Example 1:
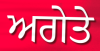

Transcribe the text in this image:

ਅਗੇਤੇ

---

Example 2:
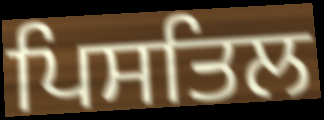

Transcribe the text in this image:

ਪਿਸਤਿਲ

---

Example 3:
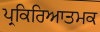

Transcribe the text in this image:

ਪ੍ਰਕਿਰਿਆਤਮਕ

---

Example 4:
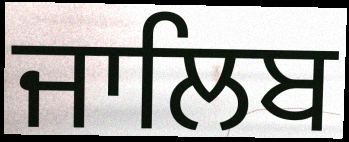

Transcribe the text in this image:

ਜਾਲਿਬ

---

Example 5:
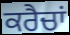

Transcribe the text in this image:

ਕਰੈਚਾਂ